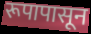
रूपापासून